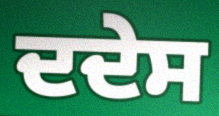
ਦਦੇਸ